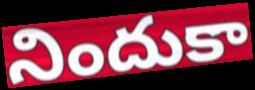
నిందుకా